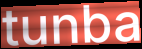
tunba